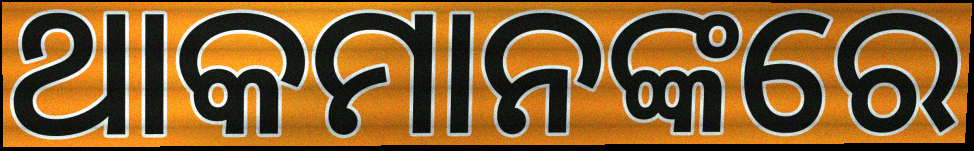
ଥାକମାନଙ୍କରେ